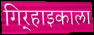
गिर्हाइकाला